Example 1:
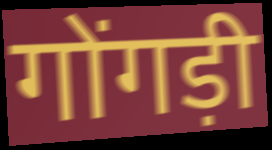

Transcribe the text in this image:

गोंगड़ी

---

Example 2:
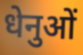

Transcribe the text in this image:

धेनुओं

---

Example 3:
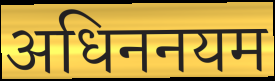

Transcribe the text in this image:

अधिननयम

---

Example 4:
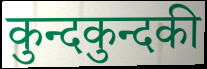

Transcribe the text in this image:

कुन्दकुन्दकी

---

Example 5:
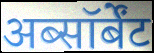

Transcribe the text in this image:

अब्सॉर्बेंट